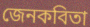
জেনকবিতা